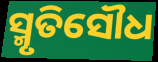
ସ୍ମୃତିସୌଧ